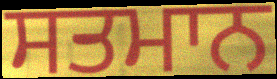
ਸਤਮਾਨ